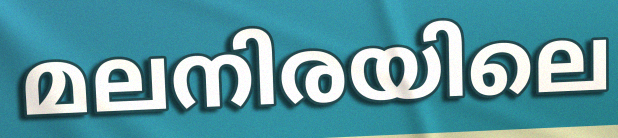
മലനിരയിലെ